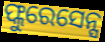
ଫ୍ଲୁରେସେନ୍ସ